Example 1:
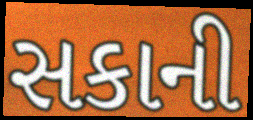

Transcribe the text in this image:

સકાની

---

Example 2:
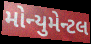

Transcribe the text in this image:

મોન્યુમેન્ટલ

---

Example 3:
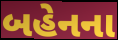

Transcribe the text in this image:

બહેનના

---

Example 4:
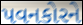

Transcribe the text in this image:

પવનકોરને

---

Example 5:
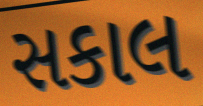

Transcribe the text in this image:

સકાલ